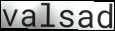
valsad